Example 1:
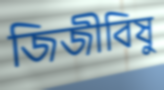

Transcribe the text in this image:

জিজীবিষু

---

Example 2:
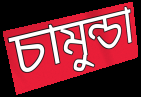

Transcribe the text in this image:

চামুন্ডা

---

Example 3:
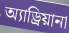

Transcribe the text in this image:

অ্যাড্রিয়ানা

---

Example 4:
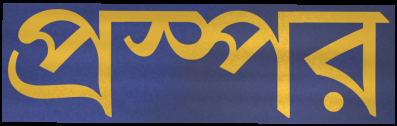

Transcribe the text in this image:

প্রস্পর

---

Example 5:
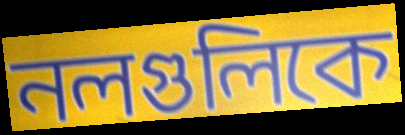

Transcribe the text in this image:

নলগুলিকে